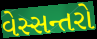
વેસ્સન્તરો